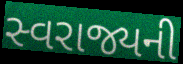
સ્વરાજ્યની